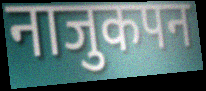
नाजुकपन